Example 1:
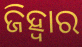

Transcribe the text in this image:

ଜିହ୍ଵାର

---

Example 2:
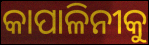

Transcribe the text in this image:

କାପାଳିନୀକୁ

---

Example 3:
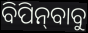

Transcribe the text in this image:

ବିପିନ୍‍ବାବୁ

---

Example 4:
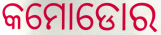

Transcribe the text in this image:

କମୋଡୋର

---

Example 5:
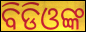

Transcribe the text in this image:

ବିଡିଓଙ୍କ